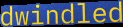
dwindled